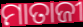
ମାତାଜୀ